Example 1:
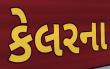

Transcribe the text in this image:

કેલરના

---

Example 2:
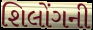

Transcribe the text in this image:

શિલોંગની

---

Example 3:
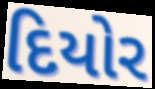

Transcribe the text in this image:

દિયોર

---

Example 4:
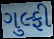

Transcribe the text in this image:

ગુલ્ફી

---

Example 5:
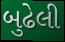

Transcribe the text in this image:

બુઢેલી